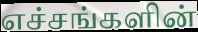
எச்சங்களின்